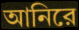
আনিরে